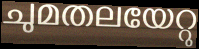
ചുമതലയേറ്റു